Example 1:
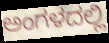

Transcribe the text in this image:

ಅಂಗಳದಲ್ಲಿ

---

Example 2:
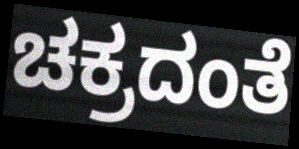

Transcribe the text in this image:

ಚಕ್ರದಂತೆ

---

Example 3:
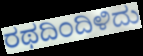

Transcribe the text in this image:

ರಥದಿಂದಿಳಿದು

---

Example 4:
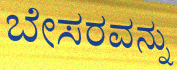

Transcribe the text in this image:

ಬೇಸರವನ್ನು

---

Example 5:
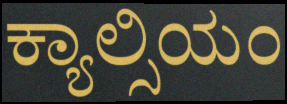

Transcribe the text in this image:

ಕ್ಯಾಲ್ಸಿಯಂ